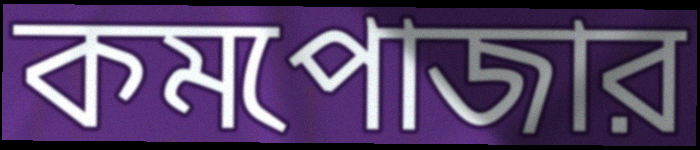
কমপোজার